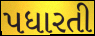
પધારતી